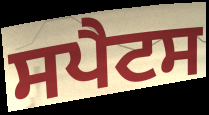
ਸਪੈਟਸ